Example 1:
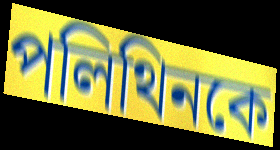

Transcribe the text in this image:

পলিথিনকে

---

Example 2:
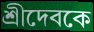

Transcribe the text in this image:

শ্রীদেবকে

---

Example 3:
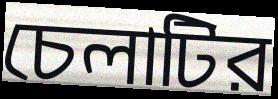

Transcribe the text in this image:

চেলাটির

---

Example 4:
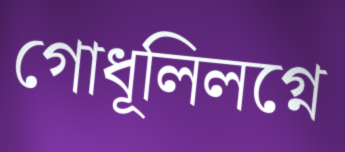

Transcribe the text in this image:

গোধূলিলগ্নে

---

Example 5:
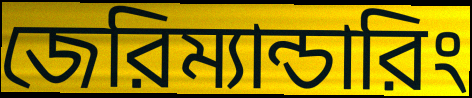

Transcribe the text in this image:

জেরিম্যান্ডারিং